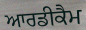
ਆਰਡੀਕੈਮ